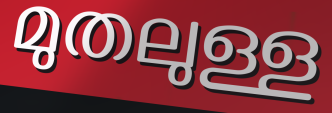
മുതലുള്ള